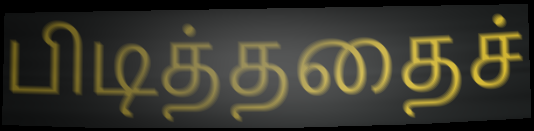
பிடித்ததைச்